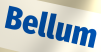
Bellum